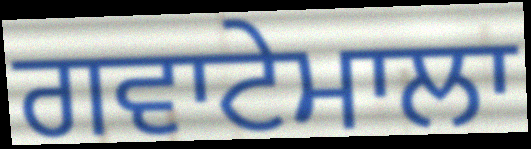
ਗਵਾਟੇਮਾਲਾ